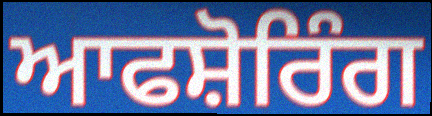
ਆਫਸ਼ੋਰਿੰਗ